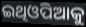
ଇଥିଓପିଆକୁ